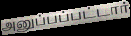
அனுப்பப்பட்டார்